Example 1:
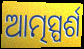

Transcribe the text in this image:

ଆତ୍ମସ୍ପର୍ଶ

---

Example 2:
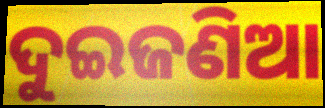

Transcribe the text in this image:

ଦୁଇଜଣିଆ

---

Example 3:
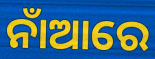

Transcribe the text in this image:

ନାଁଆରେ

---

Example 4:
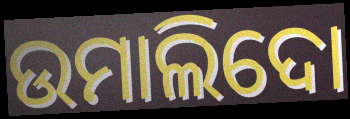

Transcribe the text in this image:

ଉମାଲିଦୋ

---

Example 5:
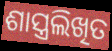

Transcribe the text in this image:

ଶାସ୍ତ୍ରଲିଖିତ